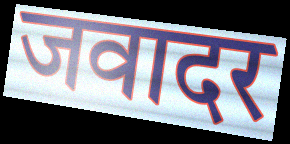
जवादर